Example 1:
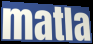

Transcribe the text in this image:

matla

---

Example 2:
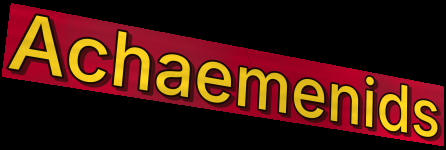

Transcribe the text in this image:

Achaemenids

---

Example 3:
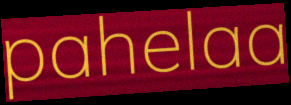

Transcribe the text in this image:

pahelaa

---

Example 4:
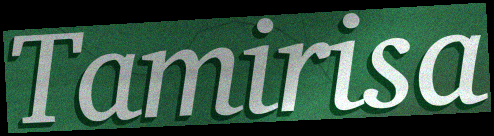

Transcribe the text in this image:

Tamirisa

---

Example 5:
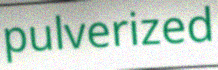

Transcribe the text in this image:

pulverized